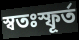
স্বতঃস্ফূর্ত